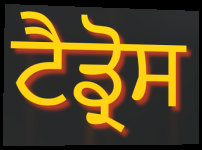
ਟੈਡ੍ਰੋਸ